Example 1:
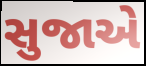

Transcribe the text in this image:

સુજાએ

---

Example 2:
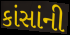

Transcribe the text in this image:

કાંસાંની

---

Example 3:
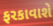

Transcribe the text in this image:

ફરકાવાશે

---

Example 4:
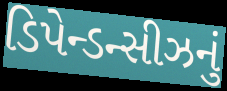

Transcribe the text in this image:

ડિપેન્ડન્સીઝનું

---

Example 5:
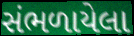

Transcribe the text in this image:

સંભળાયેલા